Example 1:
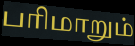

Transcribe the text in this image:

பரிமாறும்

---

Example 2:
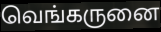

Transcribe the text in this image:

வெங்கருனை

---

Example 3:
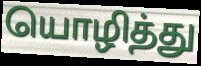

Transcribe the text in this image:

யொழித்து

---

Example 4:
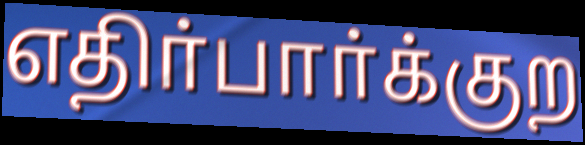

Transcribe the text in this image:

எதிர்பார்க்குற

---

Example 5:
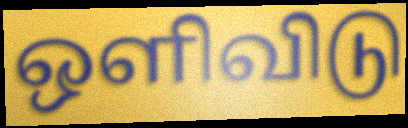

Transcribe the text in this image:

ஒளிவிடு